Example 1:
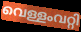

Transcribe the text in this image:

വെള്ളംവറ്റി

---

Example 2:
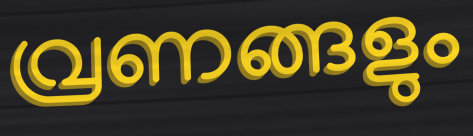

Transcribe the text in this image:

വ്രണങ്ങളും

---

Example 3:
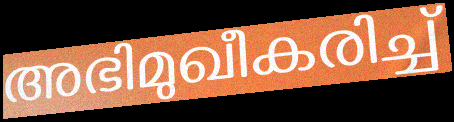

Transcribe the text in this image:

അഭിമുഖീകരിച്ച്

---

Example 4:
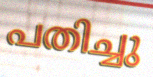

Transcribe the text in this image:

പതിച്ചു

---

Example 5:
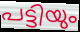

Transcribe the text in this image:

പട്ടിയും